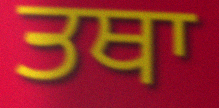
ਤਥਾ